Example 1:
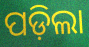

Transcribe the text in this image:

ପଡ଼ିଲା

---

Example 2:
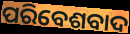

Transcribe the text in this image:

ପରିବେଶବାଦ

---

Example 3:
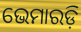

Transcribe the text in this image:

ଭେମାରଡ଼ି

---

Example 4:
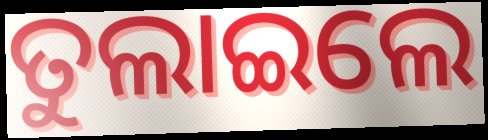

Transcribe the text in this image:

ତୁଲାଇଲେ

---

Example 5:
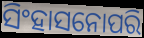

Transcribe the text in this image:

ସିଂହାସନୋପରି